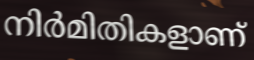
നിർമിതികളാണ്